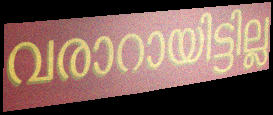
വരാറായിട്ടില്ല